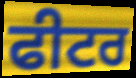
ਫੀਟਰ